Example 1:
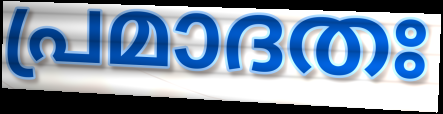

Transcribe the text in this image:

പ്രമാദതഃ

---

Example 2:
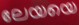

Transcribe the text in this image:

ലേയയെ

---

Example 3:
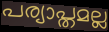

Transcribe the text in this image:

പര്യാപ്തമല്ല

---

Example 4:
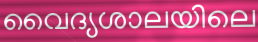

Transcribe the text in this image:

വൈദ്യശാലയിലെ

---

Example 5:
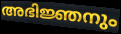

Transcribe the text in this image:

അഭിജ്ഞനും